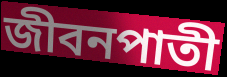
জীবনপাতী